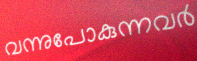
വന്നുപോകുന്നവർ